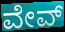
ವೇವ್